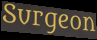
Surgeon